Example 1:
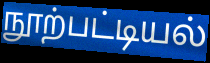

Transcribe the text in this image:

நூற்பட்டியல்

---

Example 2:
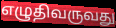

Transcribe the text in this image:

எழுதிவருவது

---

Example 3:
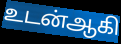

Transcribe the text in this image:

உடன்ஆகி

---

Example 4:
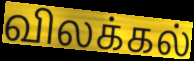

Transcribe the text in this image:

விலக்கல்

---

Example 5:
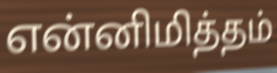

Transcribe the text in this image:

என்னிமித்தம்